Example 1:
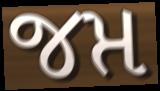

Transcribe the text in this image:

જપ્ત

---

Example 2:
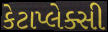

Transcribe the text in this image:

કેટાપ્લેક્સી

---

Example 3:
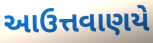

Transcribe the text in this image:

આઉત્તવાણયે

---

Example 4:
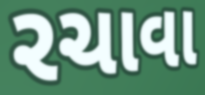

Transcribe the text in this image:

રચાવા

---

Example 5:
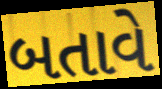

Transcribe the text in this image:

બતાવે